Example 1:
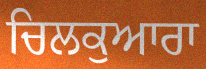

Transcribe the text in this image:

ਚਿਲਕੁਆਰਾ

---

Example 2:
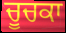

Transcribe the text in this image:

ਚੂਚਕਾ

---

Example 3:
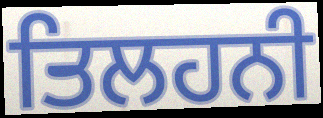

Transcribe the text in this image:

ਤਿਲਹਨੀ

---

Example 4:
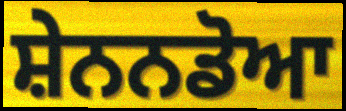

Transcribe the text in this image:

ਸ਼ੇਨਨਡੋਆ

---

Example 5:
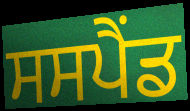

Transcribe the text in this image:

ਸਸਪੈੰਡ